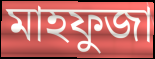
মাহফুজা